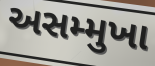
અસમ્મુખા